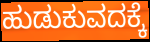
ಹುಡುಕುವದಕ್ಕೆ